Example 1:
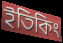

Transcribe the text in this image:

ইতিকিং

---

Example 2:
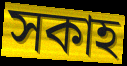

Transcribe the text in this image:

সকাহ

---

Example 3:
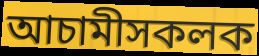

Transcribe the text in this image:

আচামীসকলক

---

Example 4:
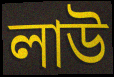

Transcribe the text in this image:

লাউ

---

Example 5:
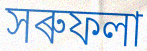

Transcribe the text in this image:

সৰুফলা